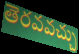
తెరవవచ్చు